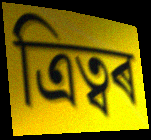
ত্ৰিত্বৰ